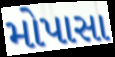
મોપાસા